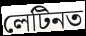
লেটিনত